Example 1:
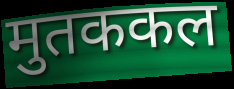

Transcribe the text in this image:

मुतककल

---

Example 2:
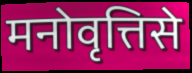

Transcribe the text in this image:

मनोवृत्तिसे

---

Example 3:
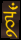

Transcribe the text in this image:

हूँं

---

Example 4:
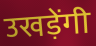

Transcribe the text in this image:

उखड़ेंगी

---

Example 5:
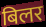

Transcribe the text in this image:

बिलर